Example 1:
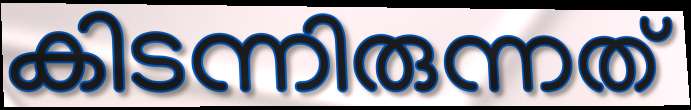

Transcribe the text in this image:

കിടന്നിരുന്നത്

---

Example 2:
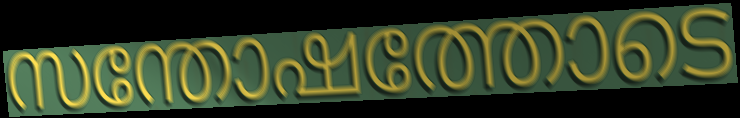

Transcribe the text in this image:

സന്തോഷത്തോടെ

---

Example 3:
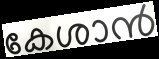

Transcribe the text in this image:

കേശാൻ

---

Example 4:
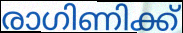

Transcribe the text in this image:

രാഗിണിക്ക്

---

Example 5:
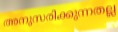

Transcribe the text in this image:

അനുസരിക്കുന്നതല്ല